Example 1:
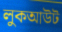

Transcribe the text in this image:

লুকআউট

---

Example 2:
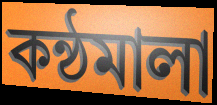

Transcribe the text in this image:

কন্ঠমালা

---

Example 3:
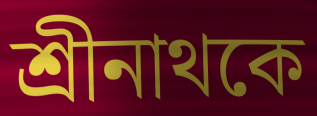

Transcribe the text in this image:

শ্রীনাথকে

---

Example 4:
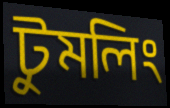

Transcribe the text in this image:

টুমলিং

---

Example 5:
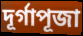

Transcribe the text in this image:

দূর্গাপূজা